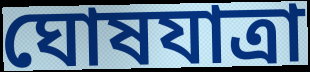
ঘোষযাত্রা